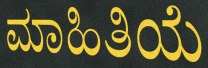
ಮಾಹಿತಿಯೆ